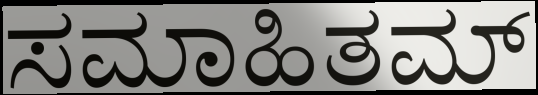
ಸಮಾಹಿತಮ್